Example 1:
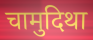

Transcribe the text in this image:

चामुदिथा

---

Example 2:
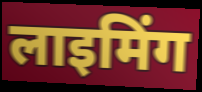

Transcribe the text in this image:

लाइमिंग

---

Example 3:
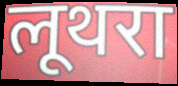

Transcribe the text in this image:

लूथरा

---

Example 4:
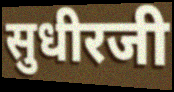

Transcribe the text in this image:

सुधीरजी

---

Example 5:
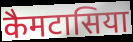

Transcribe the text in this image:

कैमटासिया